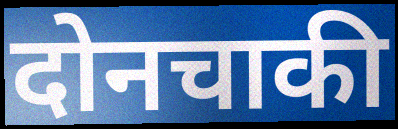
दोनचाकी